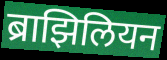
ब्राझिलियन